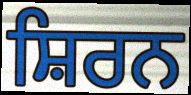
ਸ਼ਿਰਨ